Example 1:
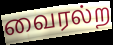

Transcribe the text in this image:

வைரல்ற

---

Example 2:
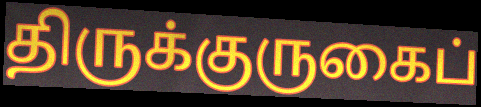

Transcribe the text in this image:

திருக்குருகைப்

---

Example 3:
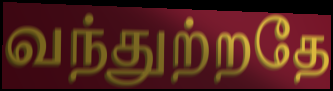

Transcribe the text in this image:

வந்துற்றதே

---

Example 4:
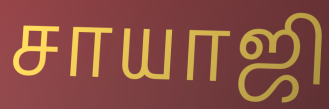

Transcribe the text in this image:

சாயாஜி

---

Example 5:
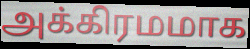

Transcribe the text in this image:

அக்கிரமமாக